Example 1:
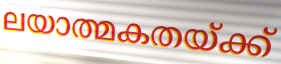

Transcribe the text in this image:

ലയാത്മകതയ്ക്ക്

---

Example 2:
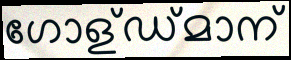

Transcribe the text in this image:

ഗോള്ഡ്മാന്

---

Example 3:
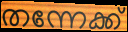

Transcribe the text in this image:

തന്നേക്ക്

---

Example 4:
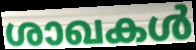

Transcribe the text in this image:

ശാഖകൾ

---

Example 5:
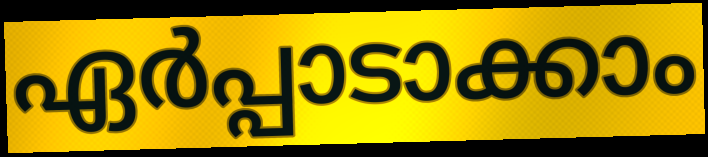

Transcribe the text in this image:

ഏർപ്പാടാക്കാം